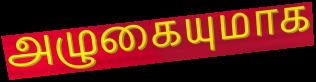
அழுகையுமாக